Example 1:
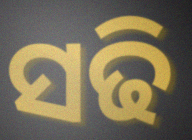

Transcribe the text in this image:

ସଢି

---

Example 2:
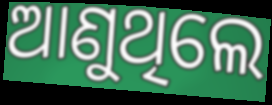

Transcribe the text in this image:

ଆଣୁଥିଲେ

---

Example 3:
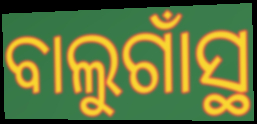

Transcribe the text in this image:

ବାଲୁଗାଁସ୍ଥ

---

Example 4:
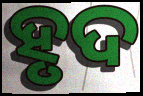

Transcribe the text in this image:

ହୃଦ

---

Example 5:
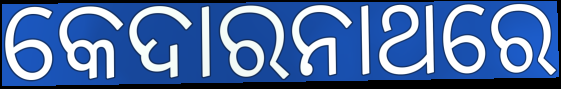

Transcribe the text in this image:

କେଦାରନାଥରେ